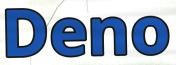
Deno